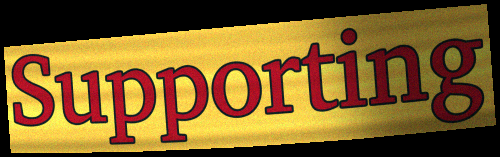
Supporting